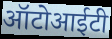
ऑटोआईटी